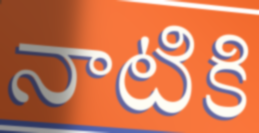
నాటికి